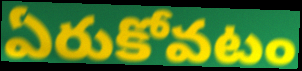
ఏరుకోవటం